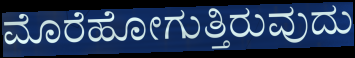
ಮೊರೆಹೋಗುತ್ತಿರುವುದು